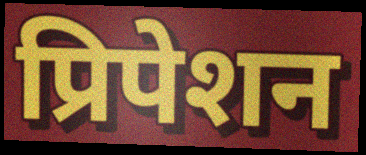
प्रिपेशन